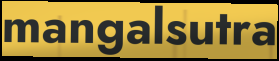
mangalsutra